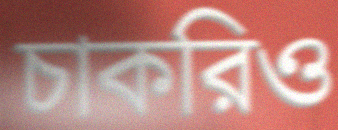
চাকরিও